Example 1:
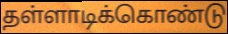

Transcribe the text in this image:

தள்ளாடிக்கொண்டு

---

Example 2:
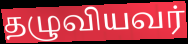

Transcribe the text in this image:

தழுவியவர்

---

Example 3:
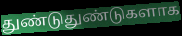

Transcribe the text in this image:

துண்டுதுண்டுகளாக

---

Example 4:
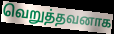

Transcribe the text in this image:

வெறுத்தவனாக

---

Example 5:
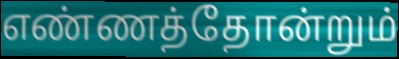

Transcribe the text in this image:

எண்ணத்தோன்றும்